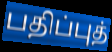
பதிப்புத்